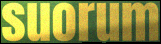
suorum